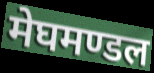
मेघमण्डल